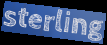
sterling